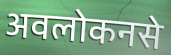
अवलोकनसे